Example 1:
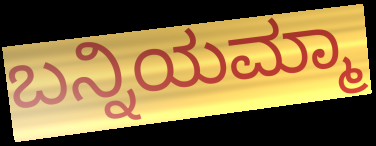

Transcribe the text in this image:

ಬನ್ನಿಯಮ್ಮಾ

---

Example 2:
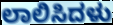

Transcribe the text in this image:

ಲಾಲಿಸಿದಳು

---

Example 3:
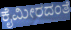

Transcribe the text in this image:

ಕೈಮೀರದಂತೆ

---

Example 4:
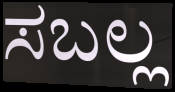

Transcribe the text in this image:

ಸಬಲ್ಲ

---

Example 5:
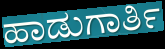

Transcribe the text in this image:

ಹಾಡುಗಾರ್ತಿ